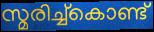
സ്മരിച്ച്കൊണ്ട്